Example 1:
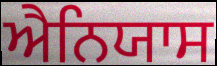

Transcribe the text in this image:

ਐਨਿਯਾਸ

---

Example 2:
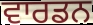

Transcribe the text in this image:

ਵਾਰਡਨ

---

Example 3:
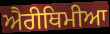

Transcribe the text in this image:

ਐਰੀਥਿਮੀਆ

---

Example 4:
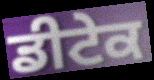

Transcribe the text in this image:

ਡੀਟੇਕ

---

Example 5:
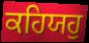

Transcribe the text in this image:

ਕਹਿਯਹੁ